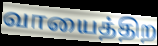
வாயைத்திற